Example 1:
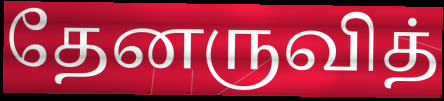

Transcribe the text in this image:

தேனருவித்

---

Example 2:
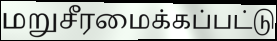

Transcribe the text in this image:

மறுசீரமைக்கப்பட்டு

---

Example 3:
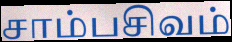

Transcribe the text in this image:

சாம்பசிவம்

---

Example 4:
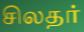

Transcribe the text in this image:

சிலதர்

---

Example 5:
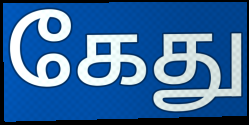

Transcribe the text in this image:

கேது